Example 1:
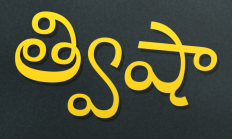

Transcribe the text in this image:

త్విషా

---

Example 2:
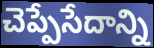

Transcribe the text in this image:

చెప్పేసేదాన్ని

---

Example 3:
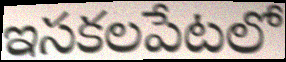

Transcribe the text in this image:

ఇసకలపేటలో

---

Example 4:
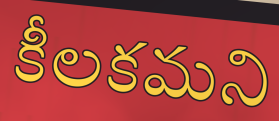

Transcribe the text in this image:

కీలకమని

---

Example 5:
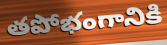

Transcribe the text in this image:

తపోభంగానికి